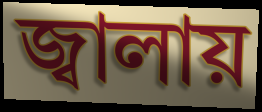
জ্বালায়